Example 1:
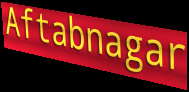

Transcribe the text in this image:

Aftabnagar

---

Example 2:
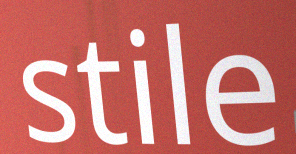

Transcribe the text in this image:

stile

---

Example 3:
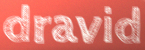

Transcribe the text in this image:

dravid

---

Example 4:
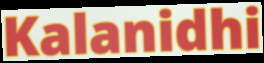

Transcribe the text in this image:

Kalanidhi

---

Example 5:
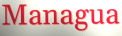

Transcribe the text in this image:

Managua